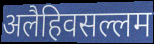
अलैहिवसल्लम